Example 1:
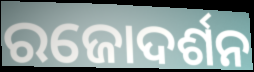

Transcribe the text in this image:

ରଜୋଦର୍ଶନ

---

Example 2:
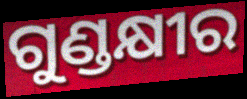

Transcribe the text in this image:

ଗୁଣ୍ଡକ୍ଷୀର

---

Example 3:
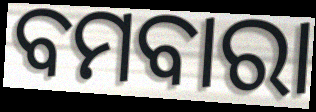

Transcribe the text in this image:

ବମବାରା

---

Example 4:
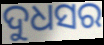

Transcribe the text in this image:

ଦୁଧସର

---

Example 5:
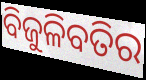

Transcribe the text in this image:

ବିଜୁଳିବତିର